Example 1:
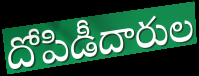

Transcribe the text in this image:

దోపిడీదారుల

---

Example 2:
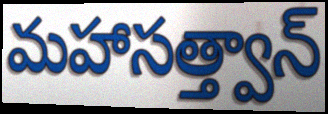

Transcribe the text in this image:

మహాసత్త్వాన్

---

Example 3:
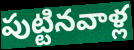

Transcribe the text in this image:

పుట్టినవాళ్ల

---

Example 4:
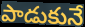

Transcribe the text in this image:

పాడుకునే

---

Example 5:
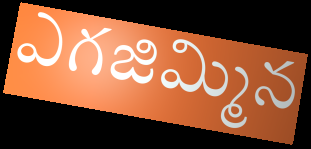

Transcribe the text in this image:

ఎగజిమ్మిన